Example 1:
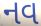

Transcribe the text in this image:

નવ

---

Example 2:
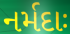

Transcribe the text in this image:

નર્મદાઃ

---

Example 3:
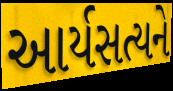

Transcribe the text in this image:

આર્યસત્યને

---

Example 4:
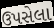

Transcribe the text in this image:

ઉપસેલા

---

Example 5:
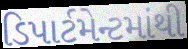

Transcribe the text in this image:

ડિપાર્ટમેન્ટમાંથી